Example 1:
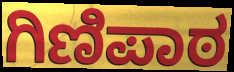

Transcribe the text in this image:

ಗಿಣಿಪಾಠ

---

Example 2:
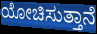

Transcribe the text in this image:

ಯೋಚಿಸುತ್ತಾನೆ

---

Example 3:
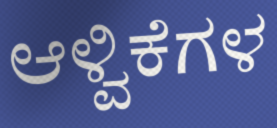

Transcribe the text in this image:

ಆಳ್ವಿಕೆಗಳ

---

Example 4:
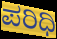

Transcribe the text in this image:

ಪರಿಧಿ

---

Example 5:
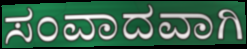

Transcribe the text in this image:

ಸಂವಾದವಾಗಿ